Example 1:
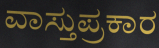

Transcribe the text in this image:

ವಾಸ್ತುಪ್ರಕಾರ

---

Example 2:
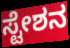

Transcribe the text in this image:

ಸ್ಟೇಶನ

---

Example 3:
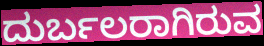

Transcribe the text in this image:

ದುರ್ಬಲರಾಗಿರುವ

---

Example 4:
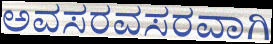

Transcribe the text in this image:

ಅವಸರವಸರವಾಗಿ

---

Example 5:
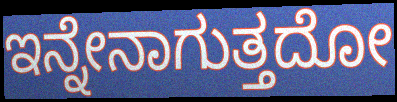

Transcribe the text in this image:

ಇನ್ನೇನಾಗುತ್ತದೋ